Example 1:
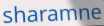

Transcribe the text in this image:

sharamne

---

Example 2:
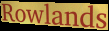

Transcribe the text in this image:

Rowlands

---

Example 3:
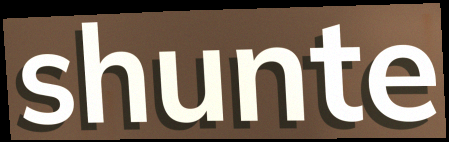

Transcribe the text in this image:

shunte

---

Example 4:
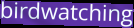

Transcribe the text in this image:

birdwatching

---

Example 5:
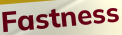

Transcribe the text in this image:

Fastness